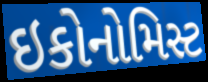
ઇકોનોમિસ્ટ